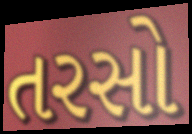
તરસો